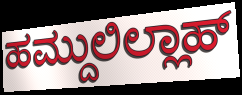
ಹಮ್ದುಲಿಲ್ಲಾಹ್